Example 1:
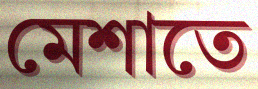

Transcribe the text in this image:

মেশাতে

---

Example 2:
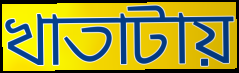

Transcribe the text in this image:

খাতাটায়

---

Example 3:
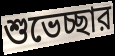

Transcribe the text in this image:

শুভেচ্ছার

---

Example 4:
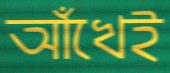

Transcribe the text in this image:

আঁখেই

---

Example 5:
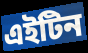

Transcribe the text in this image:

এইটিন